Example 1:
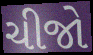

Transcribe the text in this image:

ચીજો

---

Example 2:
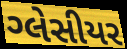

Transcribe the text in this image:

ગ્લેસીયર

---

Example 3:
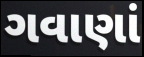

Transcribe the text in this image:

ગવાણાં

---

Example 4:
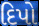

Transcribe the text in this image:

દિપો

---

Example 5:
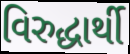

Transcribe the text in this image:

વિરુદ્ધાર્થી